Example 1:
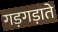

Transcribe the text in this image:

गड़गड़ाते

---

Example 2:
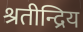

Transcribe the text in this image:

श्रतीन्द्रिय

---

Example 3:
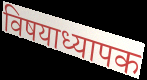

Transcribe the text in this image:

विषयाध्यापक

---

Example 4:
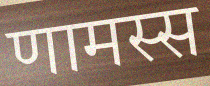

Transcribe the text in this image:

णामस्स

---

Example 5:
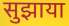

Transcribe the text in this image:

सुझाया